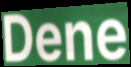
Dene